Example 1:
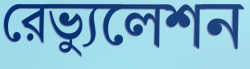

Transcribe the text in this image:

রেভ্যুলেশন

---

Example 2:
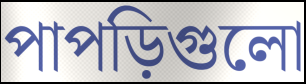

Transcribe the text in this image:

পাপড়িগুলো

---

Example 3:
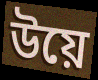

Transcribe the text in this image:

উয়ে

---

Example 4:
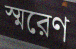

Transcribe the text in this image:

স্মরেণ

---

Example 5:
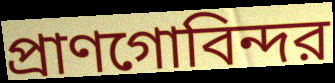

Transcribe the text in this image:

প্রাণগোবিন্দর